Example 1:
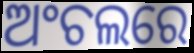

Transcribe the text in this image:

ଅଂଚଲରେ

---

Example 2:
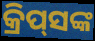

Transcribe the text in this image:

କ୍ରିପ୍‌ସଙ୍କ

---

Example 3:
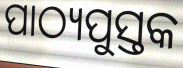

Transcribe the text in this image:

ପାଠ୍ୟପୁସ୍ତକ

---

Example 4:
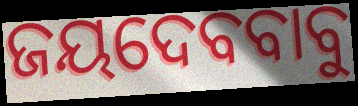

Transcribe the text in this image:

ଜୟଦେବବାବୁ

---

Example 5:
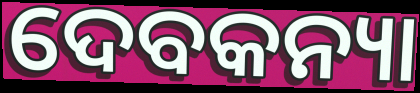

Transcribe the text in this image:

ଦେବକନ୍ୟା